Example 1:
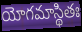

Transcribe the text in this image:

యోగమాస్థితః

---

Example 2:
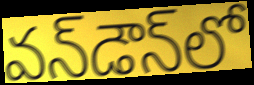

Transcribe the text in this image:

వన్‌డౌన్‌లో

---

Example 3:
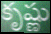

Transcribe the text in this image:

కృష్ణు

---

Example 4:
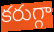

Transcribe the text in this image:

కరుగ్గా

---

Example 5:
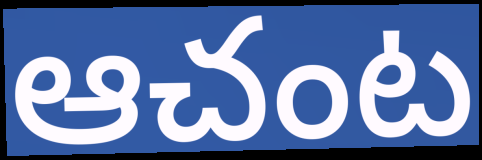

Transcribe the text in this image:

ఆచంట